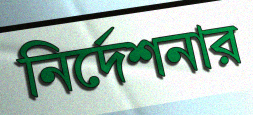
নির্দেশনার